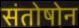
संतोषोन